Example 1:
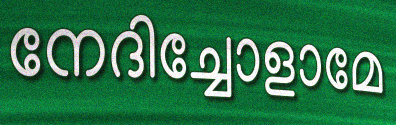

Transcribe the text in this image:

നേദിച്ചോളാമേ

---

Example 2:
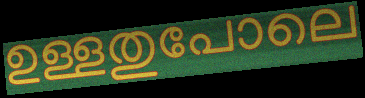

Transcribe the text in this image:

ഉള്ളതുപോലെ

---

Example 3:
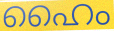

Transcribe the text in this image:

ഹൈം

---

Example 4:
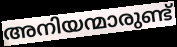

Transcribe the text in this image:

അനിയന്മാരുണ്ട്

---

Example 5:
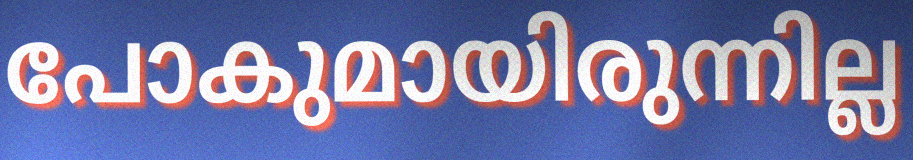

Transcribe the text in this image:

പോകുമായിരുന്നില്ല